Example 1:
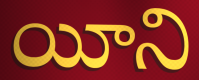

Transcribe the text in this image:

యీని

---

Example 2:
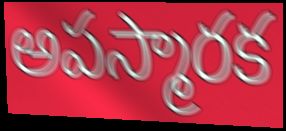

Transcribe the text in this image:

అపస్మారక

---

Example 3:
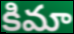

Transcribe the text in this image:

కిమా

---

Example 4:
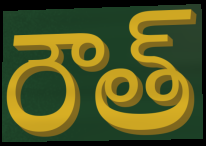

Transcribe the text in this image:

రౌత్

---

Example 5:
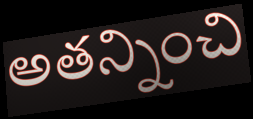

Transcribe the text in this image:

అతన్నించి